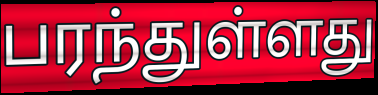
பரந்துள்ளது